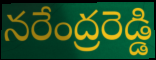
నరేంద్రరెడ్డి